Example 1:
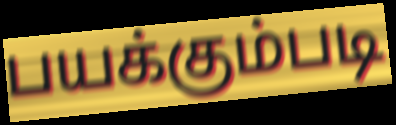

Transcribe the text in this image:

பயக்கும்படி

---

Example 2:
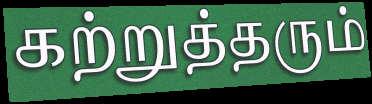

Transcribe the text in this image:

கற்றுத்தரும்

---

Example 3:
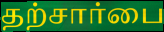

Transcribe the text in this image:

தற்சார்பை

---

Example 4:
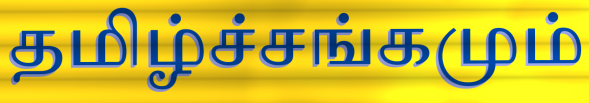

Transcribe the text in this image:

தமிழ்ச்சங்கமும்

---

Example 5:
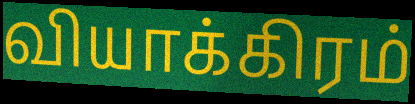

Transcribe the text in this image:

வியாக்கிரம்